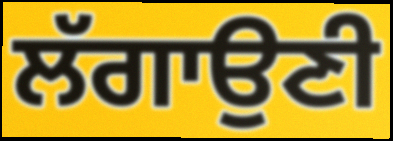
ਲੱਗਾਉਣੀ